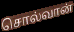
சொல்வான்